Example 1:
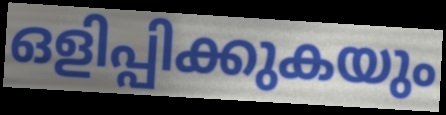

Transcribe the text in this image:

ഒളിപ്പിക്കുകയും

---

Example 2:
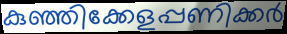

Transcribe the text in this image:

കുഞ്ഞിക്കേളപ്പണിക്കർ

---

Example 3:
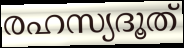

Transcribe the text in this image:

രഹസ്യദൂത്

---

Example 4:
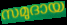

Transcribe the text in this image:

സമുദായ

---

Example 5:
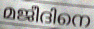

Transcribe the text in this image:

മജീദിനെ